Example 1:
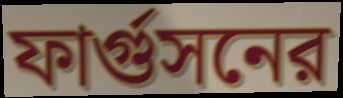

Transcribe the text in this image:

ফার্গুসনের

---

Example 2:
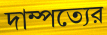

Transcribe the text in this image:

দাম্পত্যের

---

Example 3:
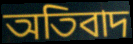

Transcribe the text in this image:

অতিবাদ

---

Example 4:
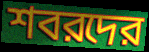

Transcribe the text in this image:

শবরদের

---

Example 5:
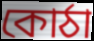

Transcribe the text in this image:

কোঠা